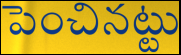
పెంచినట్టు